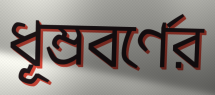
ধূম্রবর্ণের